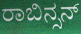
ರಾಬಿನ್ಸನ್